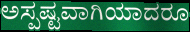
ಅಸ್ಪಷ್ಟವಾಗಿಯಾದರೂ